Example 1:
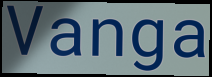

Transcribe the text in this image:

Vanga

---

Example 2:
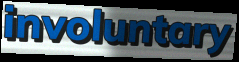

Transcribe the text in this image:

involuntary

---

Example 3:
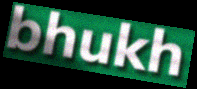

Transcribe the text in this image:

bhukh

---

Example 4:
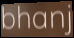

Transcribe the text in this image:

bhanj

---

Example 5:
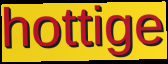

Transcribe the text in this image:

hottige